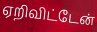
ஏறிவிட்டேன்